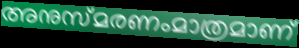
അനുസ്മരണംമാത്രമാണ്